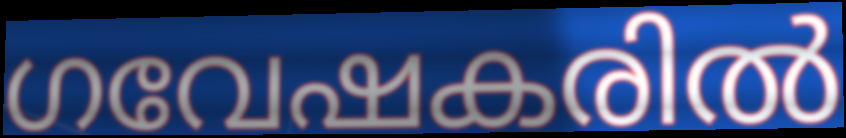
ഗവേഷകരിൽ